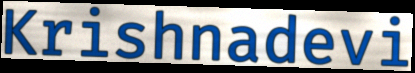
Krishnadevi